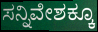
ಸನ್ನಿವೇಶಕ್ಕೂ